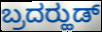
ಬ್ರದರ್‍ಹುಡ್